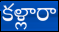
కళ్లారా